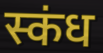
स्कंध